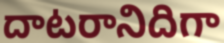
దాటరానిదిగా